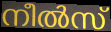
നീൽസ്